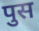
पुस